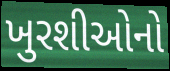
ખુરશીઓનો